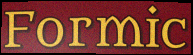
Formic